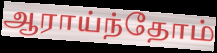
ஆராய்ந்தோம்